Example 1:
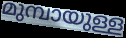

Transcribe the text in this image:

മുമ്പായുള്ള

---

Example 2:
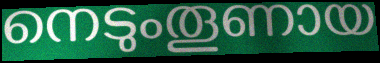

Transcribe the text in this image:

നെടുംതൂണായ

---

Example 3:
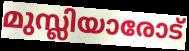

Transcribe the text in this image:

മുസ്ലിയാരോട്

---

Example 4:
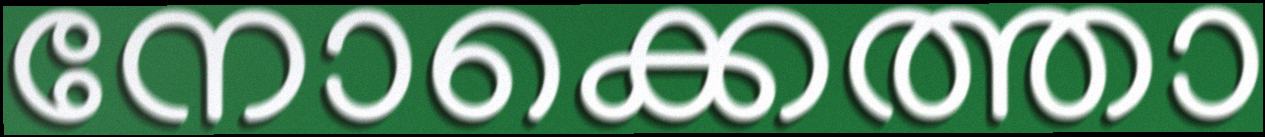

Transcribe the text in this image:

നോക്കെത്താ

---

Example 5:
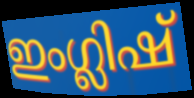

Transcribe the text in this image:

ഇംഗ്ലിഷ്